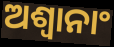
ଅଶ୍ଵାନାଂ